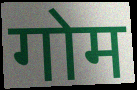
गोम